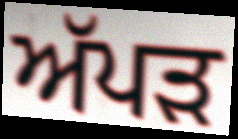
ਅੱਪੜ